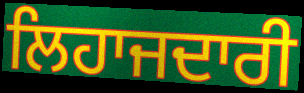
ਲਿਹਾਜਦਾਰੀ